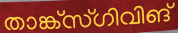
താങ്ക്സ്ഗിവിങ്